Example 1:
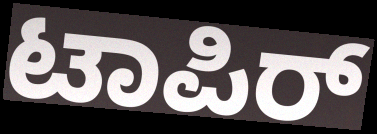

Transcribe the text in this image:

ಟಾಪಿರ್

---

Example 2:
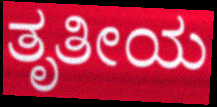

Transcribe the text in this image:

ತೃತೀಯ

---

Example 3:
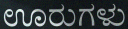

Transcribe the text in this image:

ಊರುಗಳು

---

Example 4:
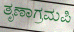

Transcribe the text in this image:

ತೃಣಾಗ್ರಮಪಿ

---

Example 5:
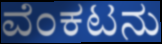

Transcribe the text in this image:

ವೆಂಕಟನು